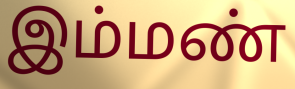
இம்மண்